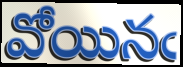
వోయినఁ